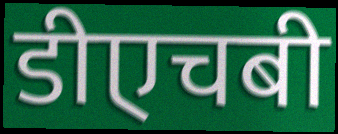
डीएचबी